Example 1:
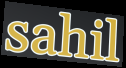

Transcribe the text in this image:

sahil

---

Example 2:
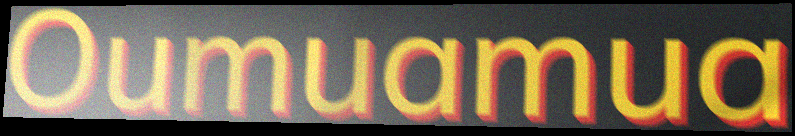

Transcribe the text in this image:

Oumuamua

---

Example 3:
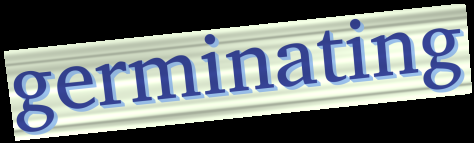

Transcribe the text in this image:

germinating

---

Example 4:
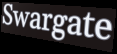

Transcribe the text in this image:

Swargate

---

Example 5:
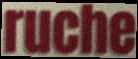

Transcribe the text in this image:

ruche